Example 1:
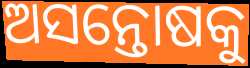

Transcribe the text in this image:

ଅସନ୍ତୋଷକୁ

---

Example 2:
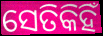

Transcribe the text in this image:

ସେତିକିହିଁ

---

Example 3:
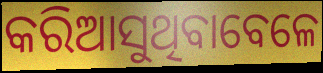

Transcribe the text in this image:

କରିଆସୁଥିବାବେଳେ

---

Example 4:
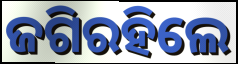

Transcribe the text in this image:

ଜଗିରହିଲେ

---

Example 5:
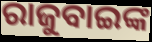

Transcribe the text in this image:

ରାଜୁବାଇଙ୍କ